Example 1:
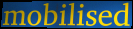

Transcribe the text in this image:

mobilised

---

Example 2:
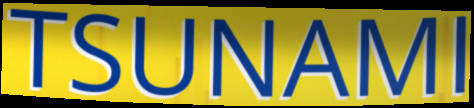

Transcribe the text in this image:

TSUNAMI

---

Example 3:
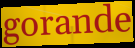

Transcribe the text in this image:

gorande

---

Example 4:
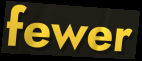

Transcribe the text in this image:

fewer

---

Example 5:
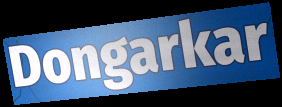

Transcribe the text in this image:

Dongarkar